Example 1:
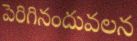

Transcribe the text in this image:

పెరిగినందువలన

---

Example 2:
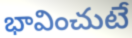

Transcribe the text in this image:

భావించుటే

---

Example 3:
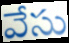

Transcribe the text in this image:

వేసు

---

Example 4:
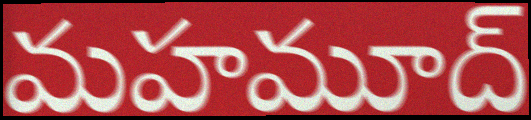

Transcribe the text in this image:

మహమూద్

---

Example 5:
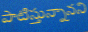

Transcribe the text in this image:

పాటిస్తున్నానని